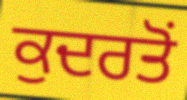
ਕੁਦਰਤੋਂ